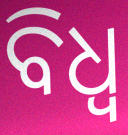
ବିଧ୍ଵ